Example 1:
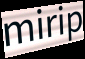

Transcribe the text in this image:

mirip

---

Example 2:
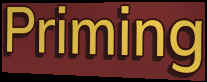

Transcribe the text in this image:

Priming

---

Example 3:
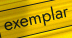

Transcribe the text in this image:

exemplar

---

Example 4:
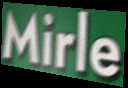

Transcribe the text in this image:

Mirle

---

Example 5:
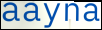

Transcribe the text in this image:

aayna